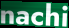
nachi